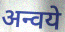
अन्वये